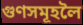
গুণসমূহলৈ